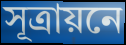
সূত্রায়নে